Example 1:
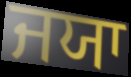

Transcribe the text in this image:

ਜਯਾ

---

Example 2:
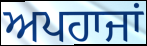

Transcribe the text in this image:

ਅਪਹਾਜਾਂ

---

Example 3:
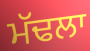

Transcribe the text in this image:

ਮੱਢਲਾ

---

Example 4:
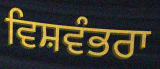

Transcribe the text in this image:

ਵਿਸ਼ਵੰਭਰਾ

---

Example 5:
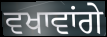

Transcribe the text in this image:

ਵਖਾਵਾਂਗੇ